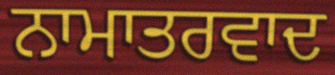
ਨਾਮਾਤਰਵਾਦ